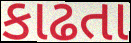
કાઢતા